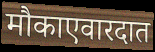
मौकाएवारदात